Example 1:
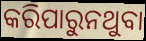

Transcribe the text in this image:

କରିପାରୁନଥୁବା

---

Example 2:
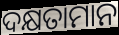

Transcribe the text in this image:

ଦକ୍ଷତାମାନ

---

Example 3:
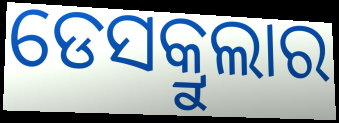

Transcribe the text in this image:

ଡେସକ୍ରୁଲାର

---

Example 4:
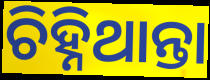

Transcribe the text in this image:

ଚିହ୍ନିଥାନ୍ତା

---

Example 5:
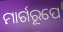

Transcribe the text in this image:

ମାର୍ଗରୂପେ